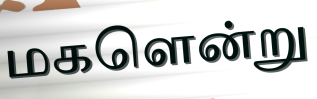
மகளென்று